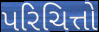
પરિચિત્તો